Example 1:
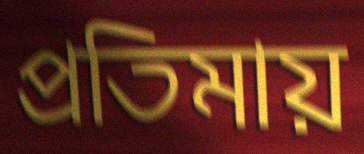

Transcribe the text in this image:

প্রতিমায়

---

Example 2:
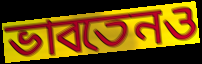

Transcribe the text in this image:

ভাবতেনও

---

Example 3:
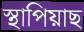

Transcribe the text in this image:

স্থাপিয়াছ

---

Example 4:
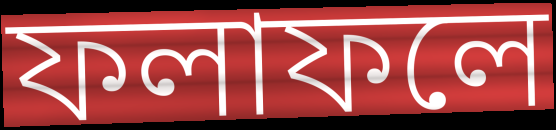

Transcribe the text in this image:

ফলাফলে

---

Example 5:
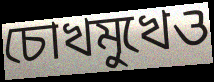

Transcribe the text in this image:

চোখমুখেও